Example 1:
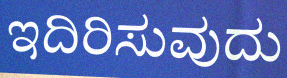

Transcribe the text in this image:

ಇದಿರಿಸುವುದು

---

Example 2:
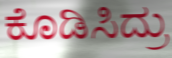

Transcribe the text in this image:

ಕೊಡಿಸಿದ್ರು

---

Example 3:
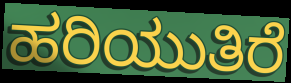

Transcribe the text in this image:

ಹರಿಯುತಿರೆ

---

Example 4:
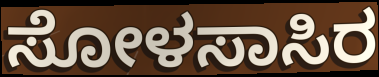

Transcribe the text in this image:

ಸೋಳಸಾಸಿರ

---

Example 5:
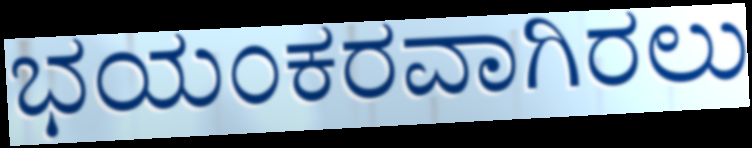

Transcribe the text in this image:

ಭಯಂಕರವಾಗಿರಲು